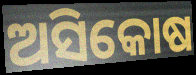
ଅସିକୋଷ